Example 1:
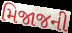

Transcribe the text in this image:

મિજાજની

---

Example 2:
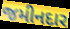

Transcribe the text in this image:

જમીનદાર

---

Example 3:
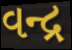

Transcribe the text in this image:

વન્દ્ર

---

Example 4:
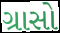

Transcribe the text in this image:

ગ્રાસો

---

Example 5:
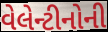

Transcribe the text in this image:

વેલેન્ટીનોની